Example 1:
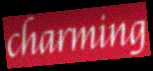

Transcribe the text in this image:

charming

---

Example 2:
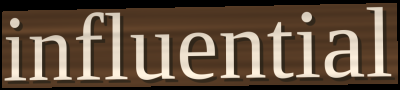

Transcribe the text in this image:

influential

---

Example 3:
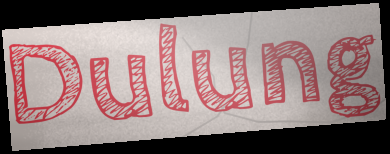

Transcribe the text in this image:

Dulung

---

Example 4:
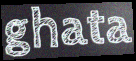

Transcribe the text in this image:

ghata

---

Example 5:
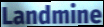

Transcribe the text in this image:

Landmine